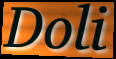
Doli